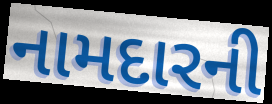
નામદારની